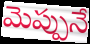
మెప్పునే